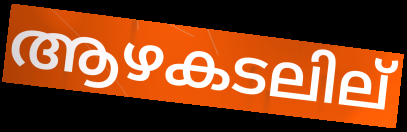
ആഴകടലില്